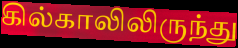
கில்காலிலிருந்து